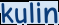
kulin